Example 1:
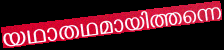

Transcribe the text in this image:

യഥാതഥമായിത്തന്നെ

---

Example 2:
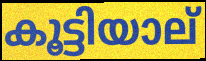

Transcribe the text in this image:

കൂട്ടിയാല്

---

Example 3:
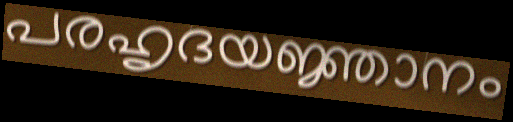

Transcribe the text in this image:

പരഹൃദയജ്ഞാനം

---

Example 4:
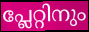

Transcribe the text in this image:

പ്ലേറ്റിനും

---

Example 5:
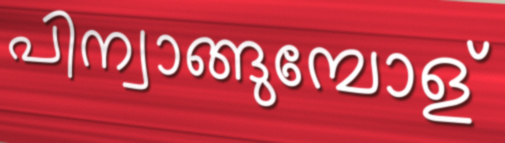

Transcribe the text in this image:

പിന്വാങ്ങുമ്പോള്